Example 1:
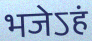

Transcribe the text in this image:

भजेऽहं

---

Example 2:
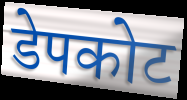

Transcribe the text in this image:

डेपकोट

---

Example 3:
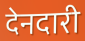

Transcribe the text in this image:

देनदारी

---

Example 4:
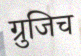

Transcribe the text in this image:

ग्रुजिच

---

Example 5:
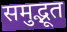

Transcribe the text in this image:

समुद्भूत